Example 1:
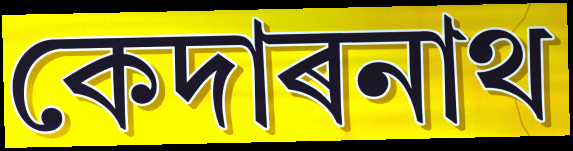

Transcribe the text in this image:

কেদাৰনাথ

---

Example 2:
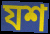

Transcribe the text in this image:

যশ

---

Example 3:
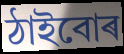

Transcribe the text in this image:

ঠাইবোৰ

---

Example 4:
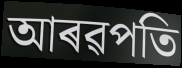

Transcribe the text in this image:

আৰৱপতি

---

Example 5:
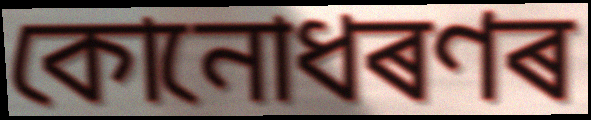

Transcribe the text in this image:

কোনোধৰণৰ